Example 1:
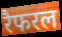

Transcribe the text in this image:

रैफरल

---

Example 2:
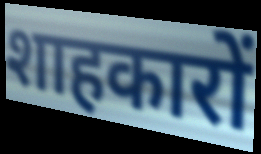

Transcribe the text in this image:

शाहकारों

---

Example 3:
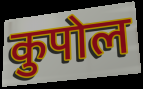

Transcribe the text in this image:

कुपोल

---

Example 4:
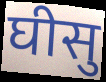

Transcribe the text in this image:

घीसु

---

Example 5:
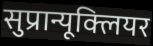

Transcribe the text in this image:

सुप्रान्यूक्लियर